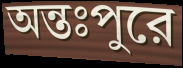
অন্তঃপুরে